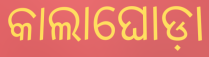
କାଲାଘୋଡ଼ା